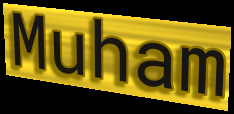
Muham